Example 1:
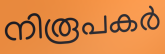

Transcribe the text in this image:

നിരൂപകർ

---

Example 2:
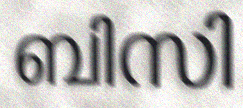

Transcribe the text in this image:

ബിസി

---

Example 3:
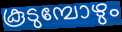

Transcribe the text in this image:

കൂടുമ്പോഴും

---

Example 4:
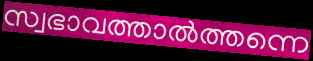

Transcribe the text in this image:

സ്വഭാവത്താൽത്തന്നെ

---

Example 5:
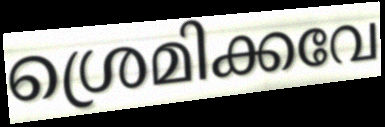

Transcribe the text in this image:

ശ്രെമിക്കവേ